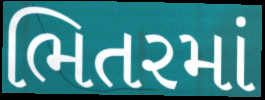
ભિતરમાં